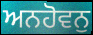
ਅਨਹੋਵਨੁ